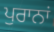
ਪੁਰਾਨਾਂ